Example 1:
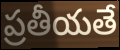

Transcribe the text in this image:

ప్రతీయతే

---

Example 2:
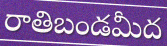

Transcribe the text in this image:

రాతిబండమీద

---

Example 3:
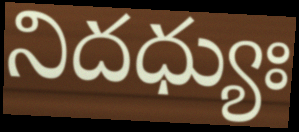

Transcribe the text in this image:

నిదధ్యుః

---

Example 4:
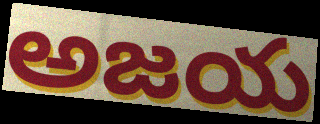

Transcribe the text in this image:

అజయ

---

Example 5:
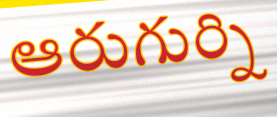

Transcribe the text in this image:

ఆరుగుర్ని